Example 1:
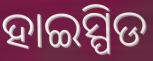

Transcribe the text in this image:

ହାଇସ୍ପିଡ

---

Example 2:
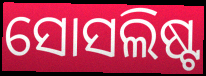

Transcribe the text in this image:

ସୋସଲିଷ୍ଟ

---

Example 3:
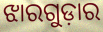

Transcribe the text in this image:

ଝାରଗୁଡ଼ାର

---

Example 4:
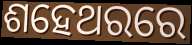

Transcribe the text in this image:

ଶହେଥରରେ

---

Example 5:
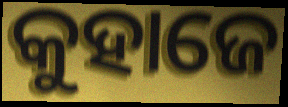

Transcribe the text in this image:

କୁହାଜେ